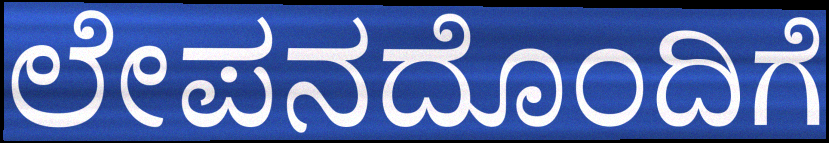
ಲೇಪನದೊಂದಿಗೆ